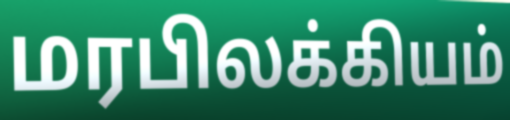
மரபிலக்கியம்